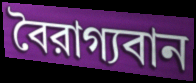
বৈরাগ্যবান